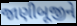
જાણીબૂજીને